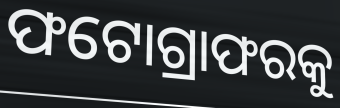
ଫଟୋଗ୍ରାଫରକୁ